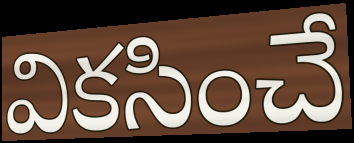
వికసించే